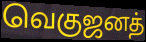
வெகுஜனத்